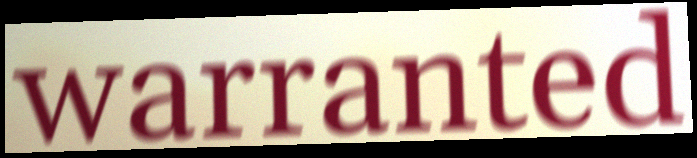
warranted